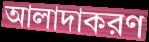
আলাদাকরণ